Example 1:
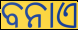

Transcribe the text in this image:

ବନାଏ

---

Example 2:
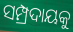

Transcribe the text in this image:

ସମ୍ପ୍ରଦାୟକୁ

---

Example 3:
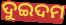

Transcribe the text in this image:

ଦୁଇଦମ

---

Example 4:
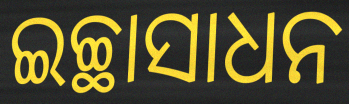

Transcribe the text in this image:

ଇଚ୍ଛାସାଧନ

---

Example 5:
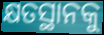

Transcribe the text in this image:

କ୍ଷତସ୍ଥାନକୁ